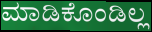
ಮಾಡಿಕೊಂಡಿಲ್ಲ